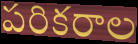
పరికరాల